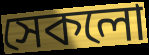
সেকলো